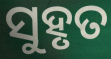
ସୁହୃତ